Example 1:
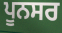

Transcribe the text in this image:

ਪੂਨਸਰ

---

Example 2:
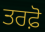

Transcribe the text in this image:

ਤਰਫ਼ੋ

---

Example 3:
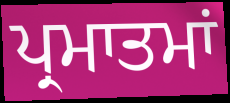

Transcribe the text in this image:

ਪ੍ਰਮਾਤਮਾਂ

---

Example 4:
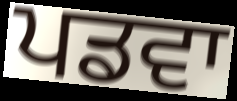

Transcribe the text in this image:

ਪਡਵਾ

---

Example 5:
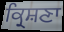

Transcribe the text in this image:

ਕ੍ਰਿਸ਼ਣਾ